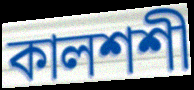
কালশশী